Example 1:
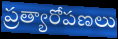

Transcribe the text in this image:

ప్రత్యారోపణలు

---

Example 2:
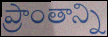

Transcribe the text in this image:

ప్రాంతాన్ని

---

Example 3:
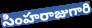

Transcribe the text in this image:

సింహరాజుగారి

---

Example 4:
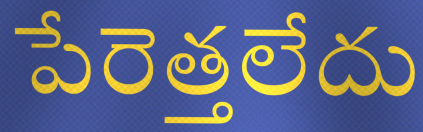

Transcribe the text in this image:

పేరెత్తలేదు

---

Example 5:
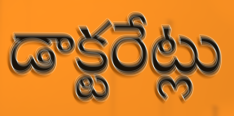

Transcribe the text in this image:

డాక్టరేట్లు